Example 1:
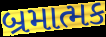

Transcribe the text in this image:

બ્રમાત્મક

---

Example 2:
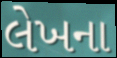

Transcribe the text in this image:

લેખના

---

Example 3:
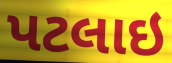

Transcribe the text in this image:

પટલાઇ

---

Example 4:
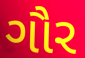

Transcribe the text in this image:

ગૌર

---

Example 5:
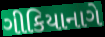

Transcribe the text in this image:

ગીકિયાનાગે